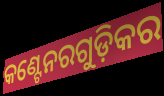
କଣ୍ଟେନରଗୁଡ଼ିକର